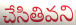
చేసితివని